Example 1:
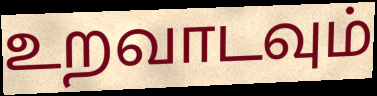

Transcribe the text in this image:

உறவாடவும்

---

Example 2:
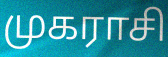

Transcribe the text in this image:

முகராசி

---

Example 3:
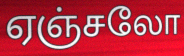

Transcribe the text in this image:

ஏஞ்சலோ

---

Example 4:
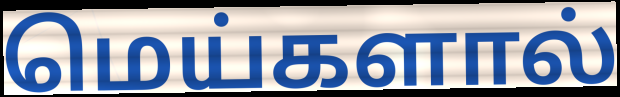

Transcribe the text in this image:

மெய்களால்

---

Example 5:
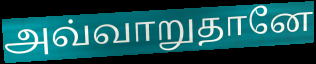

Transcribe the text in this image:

அவ்வாறுதானே